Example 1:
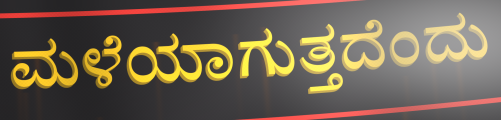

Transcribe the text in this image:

ಮಳೆಯಾಗುತ್ತದೆಂದು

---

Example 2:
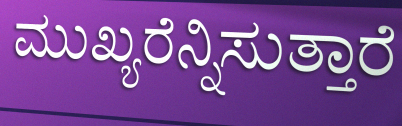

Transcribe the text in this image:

ಮುಖ್ಯರೆನ್ನಿಸುತ್ತಾರೆ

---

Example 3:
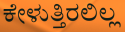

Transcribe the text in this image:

ಕೇಳುತ್ತಿರಲಿಲ್ಲ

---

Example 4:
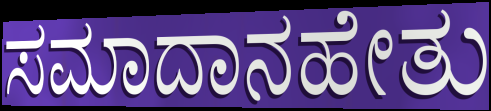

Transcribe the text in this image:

ಸಮಾದಾನಹೇತು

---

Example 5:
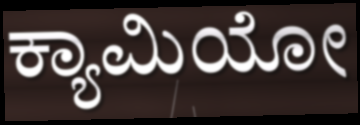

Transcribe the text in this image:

ಕ್ಯಾಮಿಯೋ